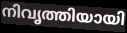
നിവൃത്തിയായി